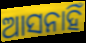
ଆସନାହିଁ